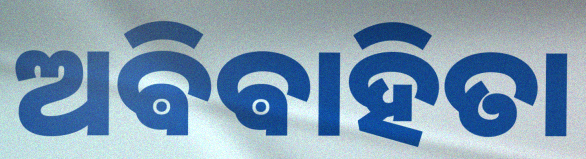
ଅଵିଵାହିତା